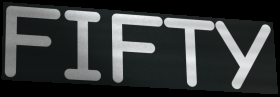
FIFTY